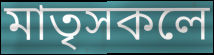
মাতৃসকলে